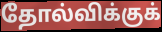
தோல்விக்குக்